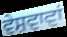
ਵੇਸ਼ਵਾਵਾਂ